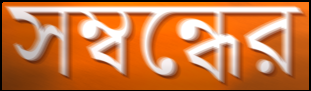
সম্বন্ধের